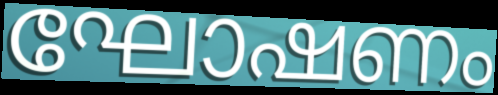
ഘോഷണം